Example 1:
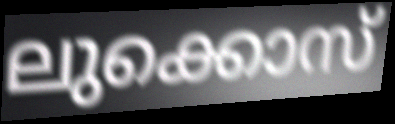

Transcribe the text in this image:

ലുക്കൊസ്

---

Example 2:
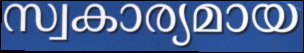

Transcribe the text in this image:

സ്വകാര്യമായ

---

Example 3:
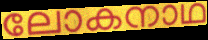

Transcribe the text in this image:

ലോകനാഥ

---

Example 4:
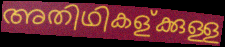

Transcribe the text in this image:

അതിഥികള്ക്കുള്ള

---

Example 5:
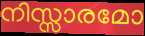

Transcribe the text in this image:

നിസ്സാരമോ